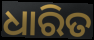
ଧାରିତ